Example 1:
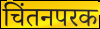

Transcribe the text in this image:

चिंतनपरक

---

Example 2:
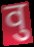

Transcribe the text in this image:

वु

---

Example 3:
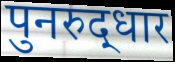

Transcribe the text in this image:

पुनरुद्धार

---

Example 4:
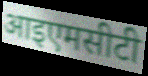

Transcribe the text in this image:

आइएमसीटी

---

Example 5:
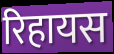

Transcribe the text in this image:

रिहायस